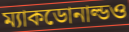
ম্যাকডোনাল্ডও